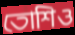
তোশিও